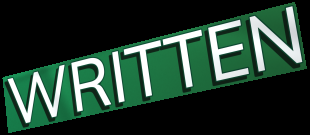
WRITTEN